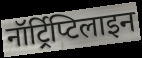
नॉर्ट्रिप्टिलाइन